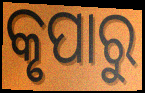
କୃପାରୁ